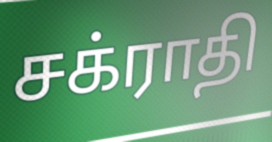
சக்ராதி